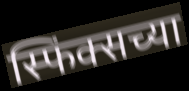
स्फिंक्सच्या